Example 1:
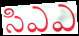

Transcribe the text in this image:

సిఎఎ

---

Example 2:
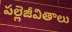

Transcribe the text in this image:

పల్లెజీవితాలు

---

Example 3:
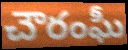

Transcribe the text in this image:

చౌరంఘీ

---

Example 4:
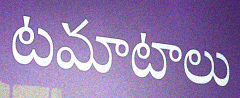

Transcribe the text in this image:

టమాటాలు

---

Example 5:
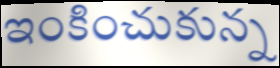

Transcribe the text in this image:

ఇంకించుకున్న